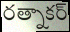
రత్నాకర్